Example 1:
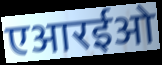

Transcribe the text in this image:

एआरईओ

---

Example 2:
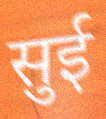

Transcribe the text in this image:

सुई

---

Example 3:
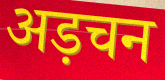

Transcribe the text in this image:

अड़चन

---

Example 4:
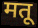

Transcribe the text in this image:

मतू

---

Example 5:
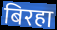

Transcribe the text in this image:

बिरहा